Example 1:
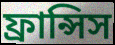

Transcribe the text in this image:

ফ্রান্সিস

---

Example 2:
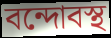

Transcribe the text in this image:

বন্দোবস্থ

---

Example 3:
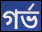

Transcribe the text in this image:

গর্ভ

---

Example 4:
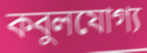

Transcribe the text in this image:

কবুলযোগ্য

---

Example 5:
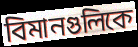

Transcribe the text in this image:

বিমানগুলিকে